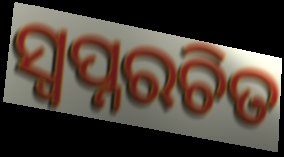
ସ୍ୱପ୍ନରଚିତ